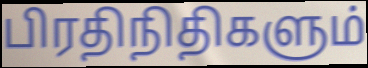
பிரதிநிதிகளும்